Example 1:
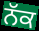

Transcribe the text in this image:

ਨੱਕ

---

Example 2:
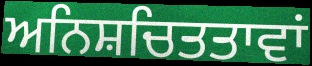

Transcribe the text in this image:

ਅਨਿਸ਼ਚਿਤਤਾਵਾਂ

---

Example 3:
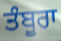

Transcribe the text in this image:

ਤੰਬੂਰਾ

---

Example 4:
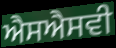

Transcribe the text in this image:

ਐਸਐਸਵੀ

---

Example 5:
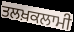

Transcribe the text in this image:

ਤਲਖ਼ਕਲਾਮੀ